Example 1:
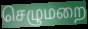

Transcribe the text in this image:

செழுமறை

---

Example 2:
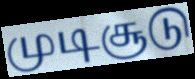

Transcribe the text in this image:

முடிசூடு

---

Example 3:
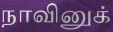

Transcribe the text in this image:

நாவினுக்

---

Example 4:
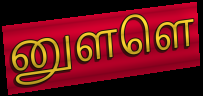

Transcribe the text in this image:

னுளளெ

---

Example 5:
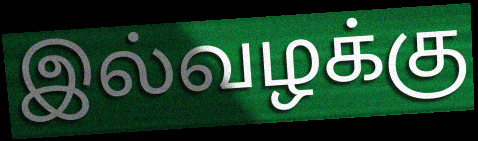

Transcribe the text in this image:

இல்வழக்கு